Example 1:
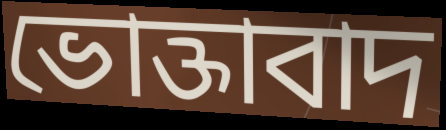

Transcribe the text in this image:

ভোক্তাবাদ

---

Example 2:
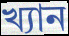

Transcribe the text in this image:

খ্যান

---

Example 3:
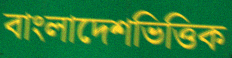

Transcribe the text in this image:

বাংলাদেশভিত্তিক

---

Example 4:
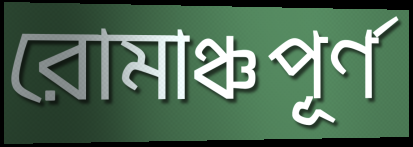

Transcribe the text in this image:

রোমাঞ্চপূর্ণ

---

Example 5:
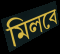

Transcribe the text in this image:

মিলবে